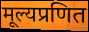
मूल्यप्रणित